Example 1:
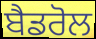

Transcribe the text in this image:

ਬੈਡਰੋਲ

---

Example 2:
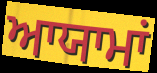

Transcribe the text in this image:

ਆਯਾਮਾਂ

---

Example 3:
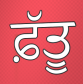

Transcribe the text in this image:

ਫ਼ੱਤੂ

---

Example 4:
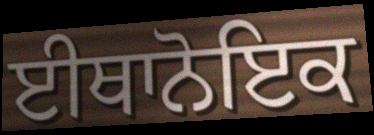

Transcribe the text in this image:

ਈਥਾਨੋਇਕ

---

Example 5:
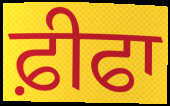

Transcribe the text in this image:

ਫ਼ੀਫਾ